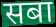
सबा